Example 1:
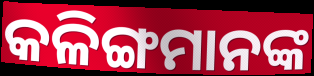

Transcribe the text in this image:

କଳିଙ୍ଗମାନଙ୍କ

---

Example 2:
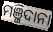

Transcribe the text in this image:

ମଞ୍ଜିଦାନା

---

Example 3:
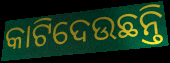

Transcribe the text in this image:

କାଟିଦେଉଛନ୍ତି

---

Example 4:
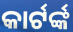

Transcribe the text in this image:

କାର୍ଟର୍ଙ୍କ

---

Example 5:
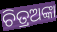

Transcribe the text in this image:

ଚିତ୍ରଅଙ୍କା